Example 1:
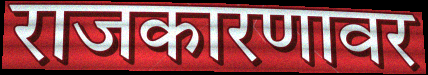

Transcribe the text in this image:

राजकारणावर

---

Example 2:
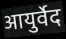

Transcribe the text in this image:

आयुर्वेद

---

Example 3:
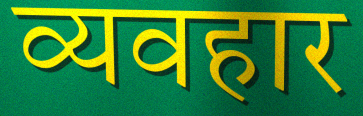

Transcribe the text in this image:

व्यवहार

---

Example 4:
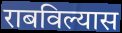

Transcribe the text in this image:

राबविल्यास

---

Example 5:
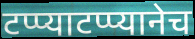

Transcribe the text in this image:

टप्प्याटप्प्यानेच